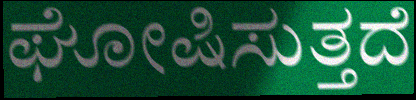
ಘೋಷಿಸುತ್ತದೆ